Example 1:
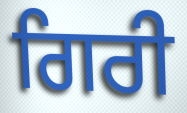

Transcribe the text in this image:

ਗਿਰੀ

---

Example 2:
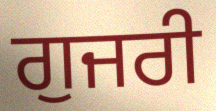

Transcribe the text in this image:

ਗੁਜਰੀ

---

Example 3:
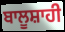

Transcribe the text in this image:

ਬਾਲੂਸ਼ਾਹੀ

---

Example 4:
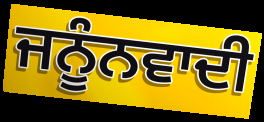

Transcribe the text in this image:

ਜਨੂੰਨਵਾਦੀ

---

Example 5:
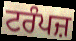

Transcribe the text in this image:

ਟਰੰਪਜ਼